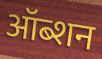
ऑब्शन